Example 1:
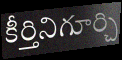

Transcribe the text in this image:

కీర్తినిగూర్చి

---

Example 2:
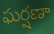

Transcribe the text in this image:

ఘర్షణా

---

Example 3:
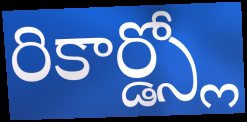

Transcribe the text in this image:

రికార్డ్స్లో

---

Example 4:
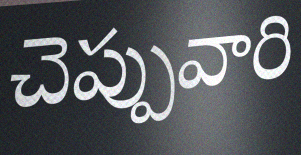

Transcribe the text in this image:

చెప్పువారి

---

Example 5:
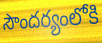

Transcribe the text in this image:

సౌందర్యంలోకి